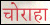
चोराहा